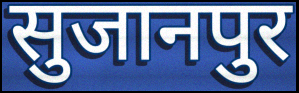
सुजानपुर